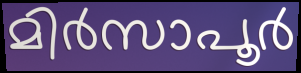
മിർസാപൂർ